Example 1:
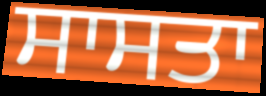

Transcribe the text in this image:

ਸਾਸਤਾ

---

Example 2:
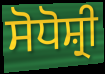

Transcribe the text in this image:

ਸੋਧੋਸ਼੍ਰੀ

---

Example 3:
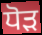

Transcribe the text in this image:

ਧੋੜ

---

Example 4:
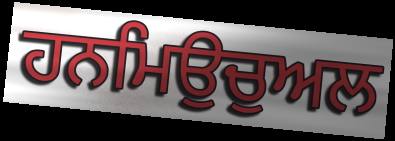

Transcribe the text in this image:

ਹਨਮਿਉਚੁਅਲ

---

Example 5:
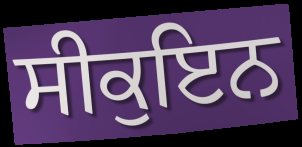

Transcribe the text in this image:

ਸੀਕੁਇਨ